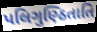
પલિગુણ્ઠિતાતિ